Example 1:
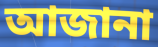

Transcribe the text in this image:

আজানা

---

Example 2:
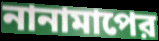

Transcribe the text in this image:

নানামাপের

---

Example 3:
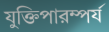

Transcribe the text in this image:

যুক্তিপারম্পর্য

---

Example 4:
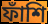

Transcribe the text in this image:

ফাঁশি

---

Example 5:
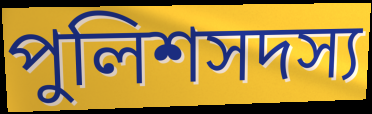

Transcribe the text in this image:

পুলিশসদস্য